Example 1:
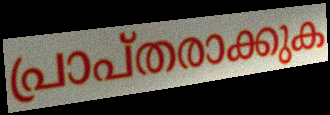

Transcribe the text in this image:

പ്രാപ്തരാക്കുക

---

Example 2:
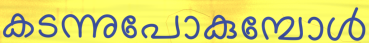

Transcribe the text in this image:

കടന്നുപോകുമ്പോൾ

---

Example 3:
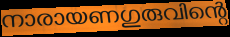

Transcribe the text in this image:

നാരായണഗുരുവിന്റെ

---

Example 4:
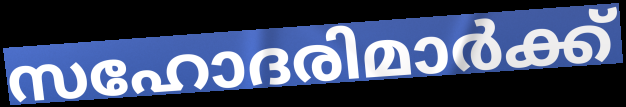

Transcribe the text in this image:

സഹോദരിമാർക്ക്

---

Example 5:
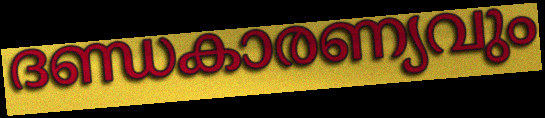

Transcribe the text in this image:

ദണ്ഡകാരണ്യവും